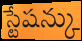
స్టేషన్కు